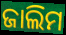
ଜାଲିମ